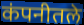
कंपनीतले